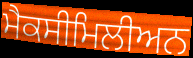
ਮੈਕਸੀਮਿਲੀਅਨ